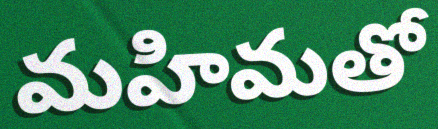
మహిమతో